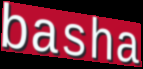
basha